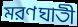
মরণঘাতী